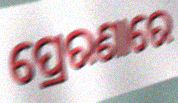
ପ୍ରେରଣାରେ